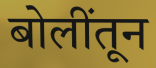
बोलींतून